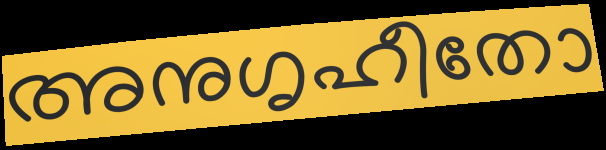
അനുഗൃഹീതോ